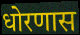
धोरणास